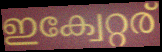
ഇക്വേറ്റര്